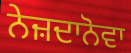
ਨੇਜ਼ਦਾਨੋਵਾ